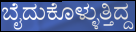
ಬೈದುಕೊಳ್ಳುತ್ತಿದ್ದ